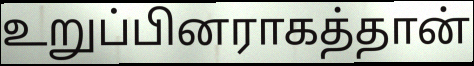
உறுப்பினராகத்தான்